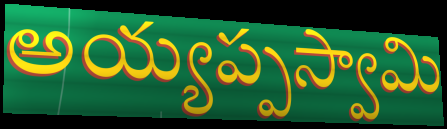
అయ్యప్పస్వామి